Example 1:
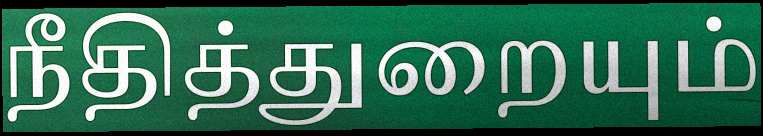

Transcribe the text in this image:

நீதித்துறையும்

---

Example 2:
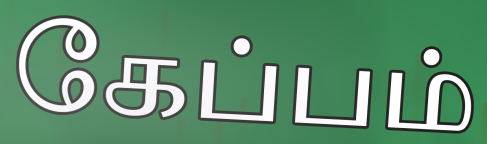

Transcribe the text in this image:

கேப்பம்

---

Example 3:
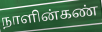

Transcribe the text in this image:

நாளின்கண்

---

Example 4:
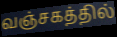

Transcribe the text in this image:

வஞ்சகத்தில்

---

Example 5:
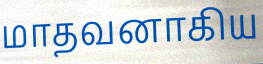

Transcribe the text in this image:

மாதவனாகிய